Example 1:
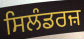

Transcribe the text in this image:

ਸਿਲੰਡਰਜ਼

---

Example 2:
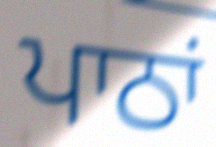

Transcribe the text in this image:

ਪਾਠਾਂ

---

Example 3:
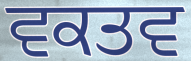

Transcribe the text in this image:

ਵਕਤਵ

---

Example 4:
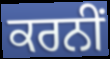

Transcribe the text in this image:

ਕਰਨੀਂ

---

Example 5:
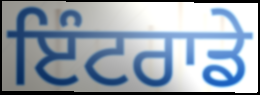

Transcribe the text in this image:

ਇੰਟਰਾਡੇ